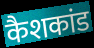
कैशकांड